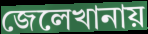
জেলেখানায়